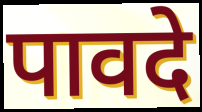
पावदे